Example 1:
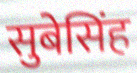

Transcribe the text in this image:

सुबेसिंह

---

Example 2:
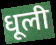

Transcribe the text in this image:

धूली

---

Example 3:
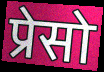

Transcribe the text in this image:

प्रेसो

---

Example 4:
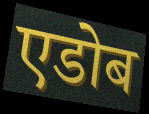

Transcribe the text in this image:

एडोब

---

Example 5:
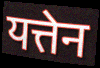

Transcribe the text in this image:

यत्तेन